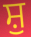
ਸ਼ੁ